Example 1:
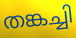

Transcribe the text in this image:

തങ്കച്ചി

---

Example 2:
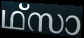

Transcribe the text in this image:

ഥ്സാ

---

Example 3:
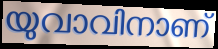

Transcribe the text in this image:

യുവാവിനാണ്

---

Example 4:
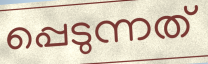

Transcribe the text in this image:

പ്പെടുന്നത്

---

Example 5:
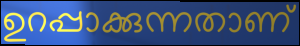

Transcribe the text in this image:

ഉറപ്പാക്കുന്നതാണ്